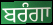
ਬਰੰਗਾ